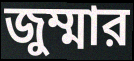
জুম্মার